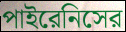
পাইরেনিসের